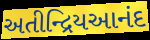
અતીન્દ્રિયઆનંદ